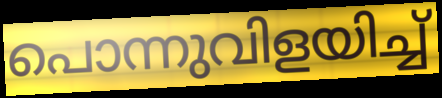
പൊന്നുവിളയിച്ച്